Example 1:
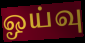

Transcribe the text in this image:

ஓய்வு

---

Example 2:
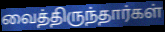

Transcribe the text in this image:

வைத்திருந்தார்கள்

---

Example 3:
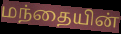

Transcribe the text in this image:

மந்தையின்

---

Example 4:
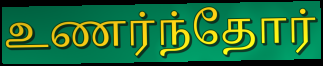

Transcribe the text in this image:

உணர்ந்தோர்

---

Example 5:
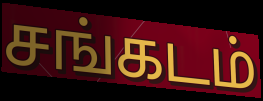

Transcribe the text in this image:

சங்கடம்